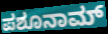
ಪಶೂನಾಮ್